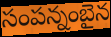
సంపన్నంబైన